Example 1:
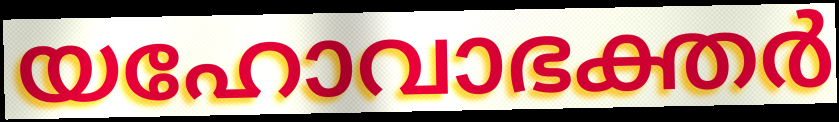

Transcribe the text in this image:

യഹോവാഭക്തർ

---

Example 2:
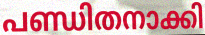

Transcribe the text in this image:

പണ്ഡിതനാക്കി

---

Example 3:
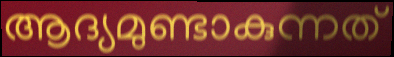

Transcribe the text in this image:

ആദ്യമുണ്ടാകുന്നത്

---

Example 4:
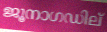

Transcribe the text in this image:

ജൂനാഗഡില്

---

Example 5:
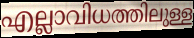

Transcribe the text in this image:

എല്ലാവിധത്തിലുള്ള